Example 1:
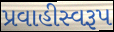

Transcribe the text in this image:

પ્રવાહીસ્વરૂપ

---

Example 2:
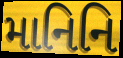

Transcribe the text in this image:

માનિનિ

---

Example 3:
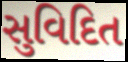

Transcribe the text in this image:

સુવિદિત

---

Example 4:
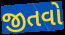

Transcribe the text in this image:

જીતવો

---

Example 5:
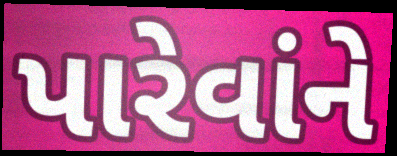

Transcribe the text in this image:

પારેવાંને